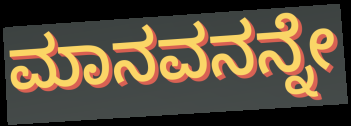
ಮಾನವನನ್ನೇ